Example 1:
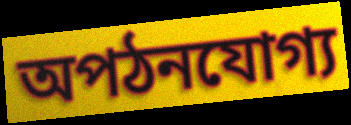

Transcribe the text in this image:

অপঠনযোগ্য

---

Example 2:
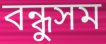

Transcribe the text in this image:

বন্ধুসম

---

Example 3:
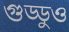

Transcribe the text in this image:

গুড্ডুও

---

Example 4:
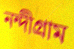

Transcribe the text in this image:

নন্দীগ্রাম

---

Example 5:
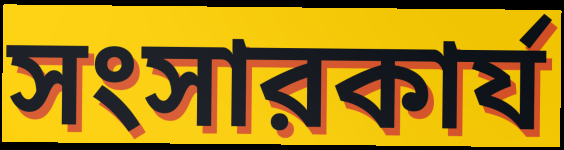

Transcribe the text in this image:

সংসারকার্য